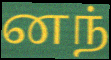
னந்